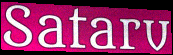
Sataru